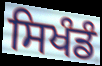
ਸਿਖੰਡੰ